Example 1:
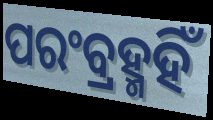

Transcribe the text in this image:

ପରଂବ୍ରହ୍ମହିଁ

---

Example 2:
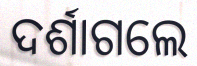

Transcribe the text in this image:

ଦର୍ଶାଗଲେ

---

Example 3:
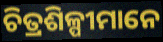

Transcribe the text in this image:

ଚିତ୍ରଶିଳ୍ପୀମାନେ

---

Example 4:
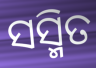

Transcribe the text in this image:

ସସ୍ମିତ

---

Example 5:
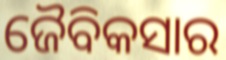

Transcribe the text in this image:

ଜୈବିକସାର